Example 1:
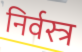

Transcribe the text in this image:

निर्वस्त्र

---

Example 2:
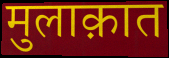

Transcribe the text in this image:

मुलाक़ात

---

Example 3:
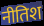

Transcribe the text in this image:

नीतिश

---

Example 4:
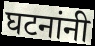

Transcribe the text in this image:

घटनांनी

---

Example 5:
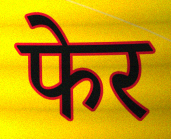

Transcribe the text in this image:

फेर